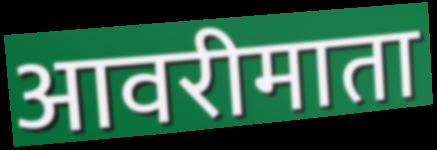
आवरीमाता